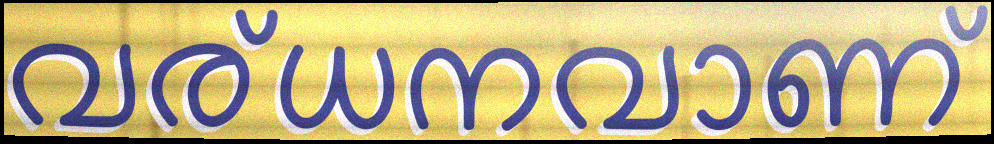
വര്ധനവാണ്